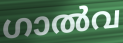
ഗാൽവ